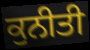
ਕੁਨੀਤੀ